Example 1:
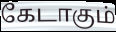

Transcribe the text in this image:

கேடாகும்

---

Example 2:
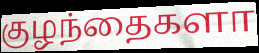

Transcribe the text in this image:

குழந்தைகளா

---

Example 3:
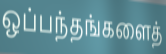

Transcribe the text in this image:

ஒப்பந்தங்களைத்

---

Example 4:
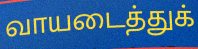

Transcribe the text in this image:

வாயடைத்துக்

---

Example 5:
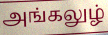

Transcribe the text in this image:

அங்கலுழ்